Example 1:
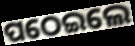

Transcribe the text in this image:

ପଠେଇଲେ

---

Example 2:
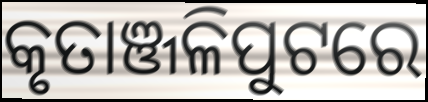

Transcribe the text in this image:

କୃତାଞ୍ଜଳିପୁଟରେ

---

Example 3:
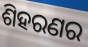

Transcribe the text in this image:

ଶିହରଣର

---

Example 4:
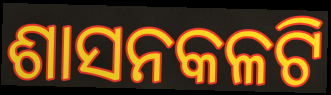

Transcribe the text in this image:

ଶାସନକଳଟି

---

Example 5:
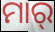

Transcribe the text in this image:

ମାର୍